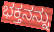
ಭಕ್ತನನ್ನು